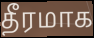
தீரமாக